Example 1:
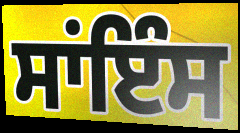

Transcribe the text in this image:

ਸਾਂਇੰਸ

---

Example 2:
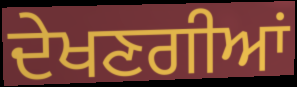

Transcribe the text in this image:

ਦੇਖਣਗੀਆਂ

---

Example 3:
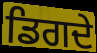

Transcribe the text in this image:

ਡਿਗਦੇ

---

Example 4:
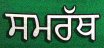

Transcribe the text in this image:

ਸਮਰੱਥ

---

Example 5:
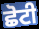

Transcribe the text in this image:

ਛੋਟੀ